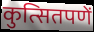
कुत्सितपणें